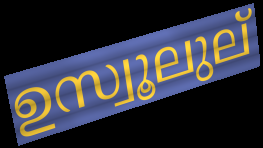
ഉസ്വൂലുല്